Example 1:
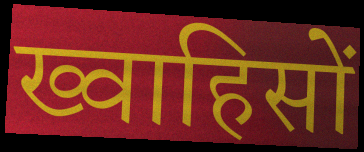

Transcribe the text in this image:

ख्वाहिसों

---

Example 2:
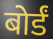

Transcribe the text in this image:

बोर्डं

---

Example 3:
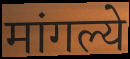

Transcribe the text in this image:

मांगल्ये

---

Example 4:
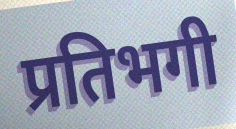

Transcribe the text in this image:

प्रतिभगी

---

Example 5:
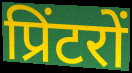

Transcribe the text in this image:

प्रिंटरों